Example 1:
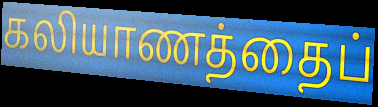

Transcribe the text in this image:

கலியாணத்தைப்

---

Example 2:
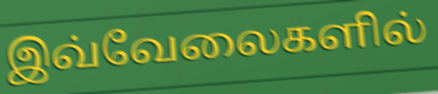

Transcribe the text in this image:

இவ்வேலைகளில்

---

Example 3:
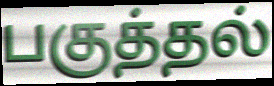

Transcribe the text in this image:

பகுத்தல்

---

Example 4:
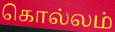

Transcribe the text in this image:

கொல்லம்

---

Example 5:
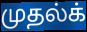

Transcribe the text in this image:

முதல்க்